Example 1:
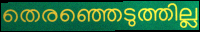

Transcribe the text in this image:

തെരഞ്ഞെടുത്തില്ല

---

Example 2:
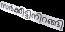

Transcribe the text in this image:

സർക്കീട്ടിനിറങ്ങി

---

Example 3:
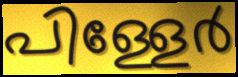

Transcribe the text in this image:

പിള്ളേർ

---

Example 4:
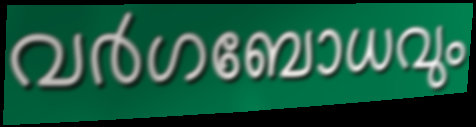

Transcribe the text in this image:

വർഗബോധവും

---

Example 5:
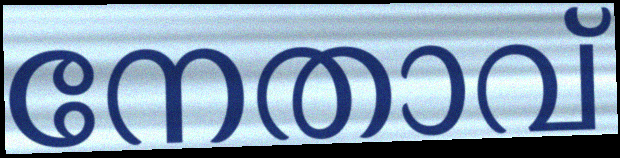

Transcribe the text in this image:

നേതാവ്